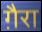
ग़ैरा